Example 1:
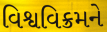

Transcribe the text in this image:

વિશ્વવિક્રમને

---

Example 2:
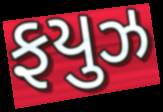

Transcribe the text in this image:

ફયુઝ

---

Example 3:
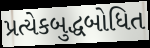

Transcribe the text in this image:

પ્રત્યેકબુદ્ધબોધિત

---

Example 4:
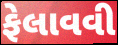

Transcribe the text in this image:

ફેલાવવી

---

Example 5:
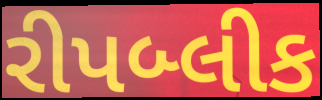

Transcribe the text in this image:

રીપબ્લીક